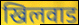
खिलवाड